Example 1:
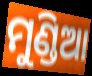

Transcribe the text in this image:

ମୁଣ୍ଡିଆ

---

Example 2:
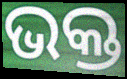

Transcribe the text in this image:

ଭକ୍ତ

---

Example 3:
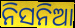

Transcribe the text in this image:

ନିସନିଆ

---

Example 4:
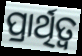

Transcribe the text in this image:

ପ୍ରାର୍ଥିତ୍ୱ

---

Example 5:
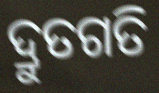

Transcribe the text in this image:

ଦ୍ରୁତଗତି